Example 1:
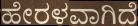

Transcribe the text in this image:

ಹೇರಳವಾಗಿದೆ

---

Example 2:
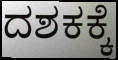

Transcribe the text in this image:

ದಶಕಕ್ಕೆ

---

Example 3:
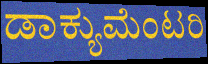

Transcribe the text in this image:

ಡಾಕ್ಯುಮೆಂಟರಿ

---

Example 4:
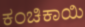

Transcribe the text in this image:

ಕಂಚಿಕಾಯಿ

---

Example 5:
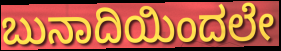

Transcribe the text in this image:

ಬುನಾದಿಯಿಂದಲೇ